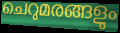
ചെറുമരങ്ങളും